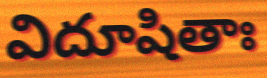
విదూషితాః